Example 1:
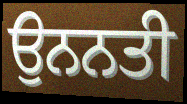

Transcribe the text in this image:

ਉਨਨਤੀ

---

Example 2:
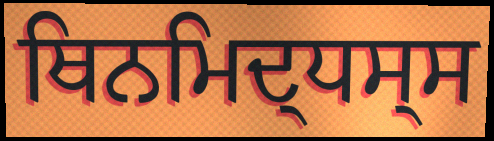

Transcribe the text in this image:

ਥਿਨਮਿਦ੍ਧਸ੍ਸ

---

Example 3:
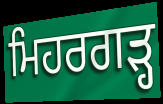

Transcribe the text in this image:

ਮਿਹਰਗੜ੍ਹ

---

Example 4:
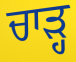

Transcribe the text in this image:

ਚਾਡ਼੍ਹ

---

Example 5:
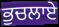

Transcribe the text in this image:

ਭੁਚਲਾਏ